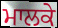
ਮਾਲਕੇ